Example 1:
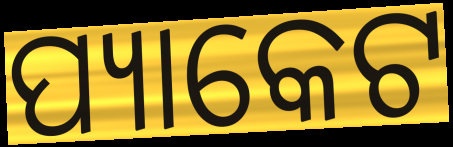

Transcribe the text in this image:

ପ୍ୟାକେଟ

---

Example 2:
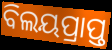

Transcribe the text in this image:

ବିଲୟପ୍ରାପ୍ତ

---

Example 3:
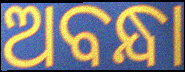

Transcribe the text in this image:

ଅବନ୍ଧା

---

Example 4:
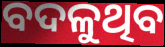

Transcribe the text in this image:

ବଦଳୁଥିବ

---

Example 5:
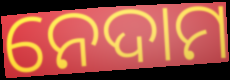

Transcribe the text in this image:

ନେଦାମ